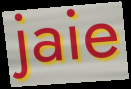
jaie